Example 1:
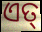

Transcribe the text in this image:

ଏତ୍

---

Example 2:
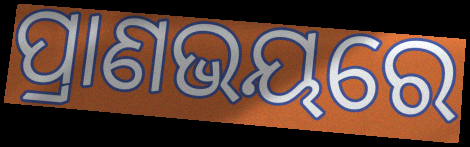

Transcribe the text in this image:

ପ୍ରାଣଭୟରେ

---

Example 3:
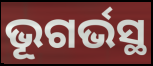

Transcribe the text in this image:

ଭୂଗର୍ଭସ୍ଥ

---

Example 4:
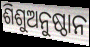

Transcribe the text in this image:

ଶିଶୁଅନୁଷ୍ଠାନ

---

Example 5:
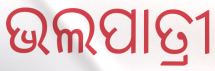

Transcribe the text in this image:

ଭଲପାତ୍ରୀ